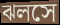
ঝলসে